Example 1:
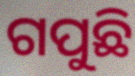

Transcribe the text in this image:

ଗପୁଛି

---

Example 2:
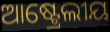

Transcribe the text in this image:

ଆଷ୍ଟ୍ରେଲୀୟ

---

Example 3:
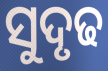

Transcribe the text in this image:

ସୁଦୃଢ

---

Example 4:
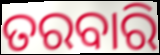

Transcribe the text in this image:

ତରବାରି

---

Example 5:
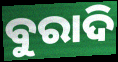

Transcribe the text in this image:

ବୁରାଦି